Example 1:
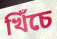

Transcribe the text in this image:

খিঁচে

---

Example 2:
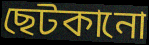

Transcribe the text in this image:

ছেটকানো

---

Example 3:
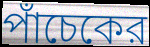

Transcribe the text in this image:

পাঁচেকের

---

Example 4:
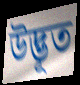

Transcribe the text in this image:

উদ্ভূত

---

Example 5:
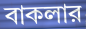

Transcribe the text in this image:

বাকলার